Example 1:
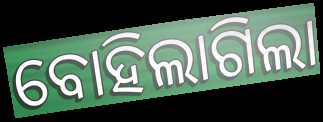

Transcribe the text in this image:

ବୋହିଲାଗିଲା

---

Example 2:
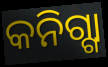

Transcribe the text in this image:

କନିଗ୍ଗା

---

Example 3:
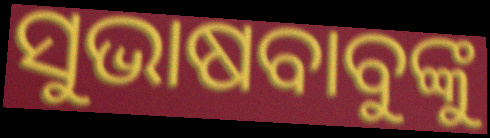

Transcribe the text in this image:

ସୁଭାଷବାବୁଙ୍କୁ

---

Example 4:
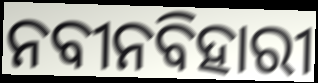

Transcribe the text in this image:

ନବୀନବିହାରୀ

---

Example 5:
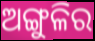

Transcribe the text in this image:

ଅଙ୍ଗୁଳିର